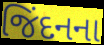
જિંદનના